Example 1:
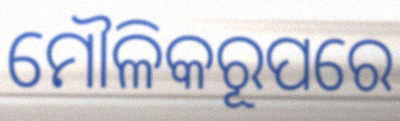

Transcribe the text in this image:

ମୌଳିକରୂପରେ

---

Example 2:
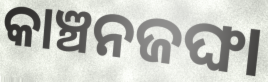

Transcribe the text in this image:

କାଞ୍ଚନଜଙ୍ଘା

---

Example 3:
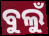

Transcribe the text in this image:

ବୁଲୁଁ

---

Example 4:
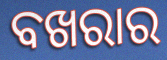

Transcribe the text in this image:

ବଖରାର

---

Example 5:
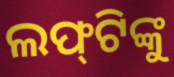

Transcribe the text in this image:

ଲଫ୍‌ଟିଙ୍କୁ